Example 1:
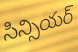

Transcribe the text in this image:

సిన్సియర్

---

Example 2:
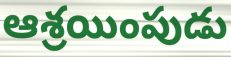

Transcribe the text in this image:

ఆశ్రయింపుడు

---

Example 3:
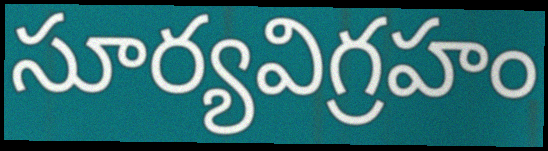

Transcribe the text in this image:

సూర్యవిగ్రహం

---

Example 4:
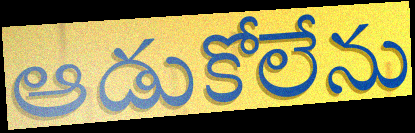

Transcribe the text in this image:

ఆడుకోలేను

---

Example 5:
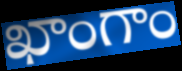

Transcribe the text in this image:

ఖాంగాం